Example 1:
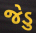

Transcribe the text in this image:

જેડુ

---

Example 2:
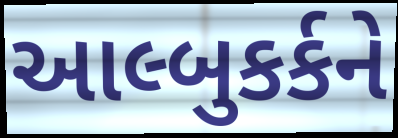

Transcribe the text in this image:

આલ્બુકર્કને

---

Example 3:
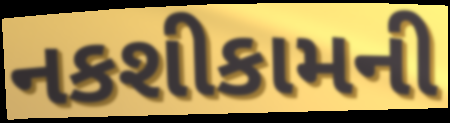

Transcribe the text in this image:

નકશીકામની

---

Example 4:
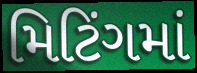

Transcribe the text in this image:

મિટિંગમાં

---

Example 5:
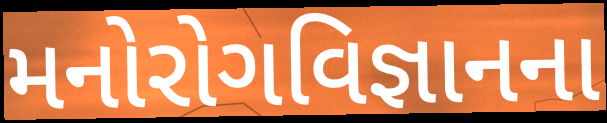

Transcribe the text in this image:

મનોરોગવિજ્ઞાનના